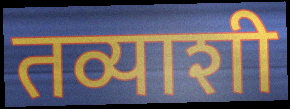
तव्याशी